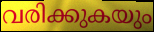
വരിക്കുകയും